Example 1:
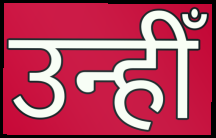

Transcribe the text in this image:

उन्हीँ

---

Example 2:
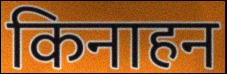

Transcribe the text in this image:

किनाहन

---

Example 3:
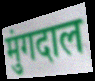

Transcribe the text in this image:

मुंगदाल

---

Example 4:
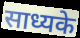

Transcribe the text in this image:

साध्यके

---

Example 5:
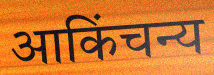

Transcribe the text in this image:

आकिंचन्य